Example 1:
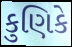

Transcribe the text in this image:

કુણિકે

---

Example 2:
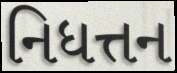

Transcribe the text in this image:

નિધત્તન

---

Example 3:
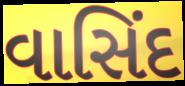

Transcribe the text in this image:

વાસિંદ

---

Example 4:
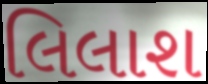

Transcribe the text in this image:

લિલાશ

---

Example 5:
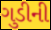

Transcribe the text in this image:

ગુડીની